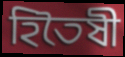
হিতৈষী